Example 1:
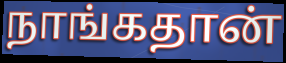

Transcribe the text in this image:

நாங்கதான்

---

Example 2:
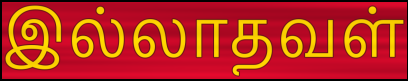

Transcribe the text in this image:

இல்லாதவள்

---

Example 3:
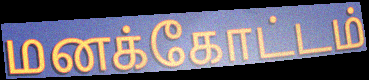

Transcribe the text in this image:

மனக்கோட்டம்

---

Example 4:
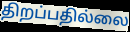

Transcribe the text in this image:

திறப்பதில்லை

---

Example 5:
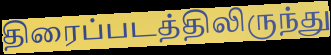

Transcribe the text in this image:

திரைப்படத்திலிருந்து